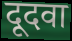
दूदवा